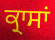
ਕ੍ਰਾਸਾਂ